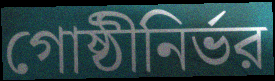
গোষ্ঠীনির্ভর